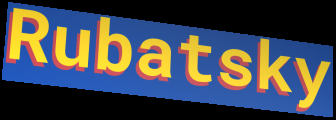
Rubatsky